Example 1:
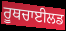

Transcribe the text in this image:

ਰੂਥਚਾਈਲਡ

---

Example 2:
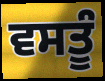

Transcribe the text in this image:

ਵਸਤੂੰ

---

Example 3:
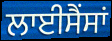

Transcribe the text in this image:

ਲਾਈਸੈਂਸਾਂ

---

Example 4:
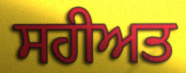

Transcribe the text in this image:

ਸਹੀਅਤ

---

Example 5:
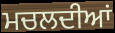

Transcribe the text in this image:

ਮਚਲਦੀਆਂ